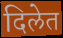
दिलेत